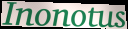
Inonotus